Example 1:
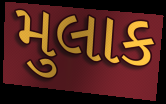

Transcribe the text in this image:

મુલાક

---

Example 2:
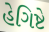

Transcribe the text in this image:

હેગિષ્ટે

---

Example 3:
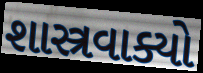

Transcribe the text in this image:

શાસ્ત્રવાક્યો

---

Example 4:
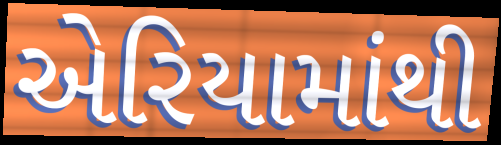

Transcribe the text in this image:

એરિયામાંથી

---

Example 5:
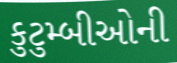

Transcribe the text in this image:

કુટુમ્બીઓની